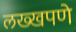
लख्खपणे